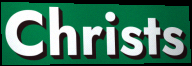
Christs